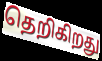
தெறிகிறது